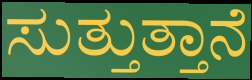
ಸುತ್ತುತ್ತಾನೆ